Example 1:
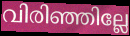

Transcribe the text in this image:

വിരിഞ്ഞില്ലേ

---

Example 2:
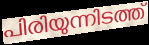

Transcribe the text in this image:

പിരിയുന്നിടത്ത്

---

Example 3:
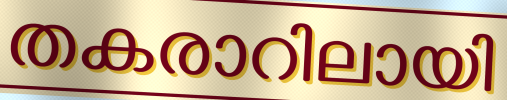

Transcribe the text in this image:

തകരാറിലായി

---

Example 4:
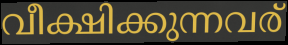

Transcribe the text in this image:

വീക്ഷിക്കുന്നവര്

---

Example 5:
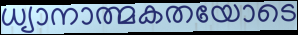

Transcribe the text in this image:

ധ്യാനാത്മകതയോടെ